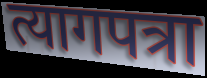
त्यागपत्रा